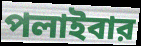
পলাইবার